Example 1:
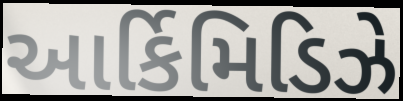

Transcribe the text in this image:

આર્કિમિડિઝે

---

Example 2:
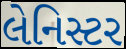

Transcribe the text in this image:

લેનિસ્ટર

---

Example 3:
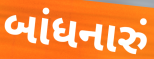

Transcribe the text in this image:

બાંધનારું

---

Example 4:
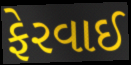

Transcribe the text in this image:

ફેરવાઈ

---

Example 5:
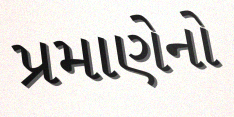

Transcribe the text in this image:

પ્રમાણેનો